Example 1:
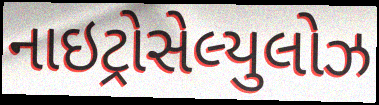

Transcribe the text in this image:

નાઇટ્રોસેલ્યુલોઝ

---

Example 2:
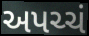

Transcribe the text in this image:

અપચ્ચં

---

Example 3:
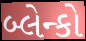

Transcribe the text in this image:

બ્લેન્કો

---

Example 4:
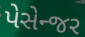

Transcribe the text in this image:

પેસેન્જર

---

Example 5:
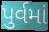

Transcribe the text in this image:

પુર્વમાં